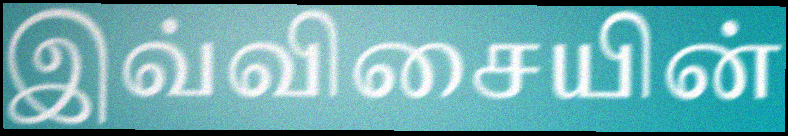
இவ்விசையின்